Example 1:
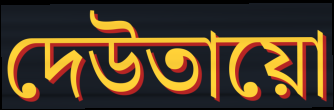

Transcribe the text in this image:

দেউতায়ো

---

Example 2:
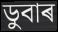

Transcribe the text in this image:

ডুবাৰ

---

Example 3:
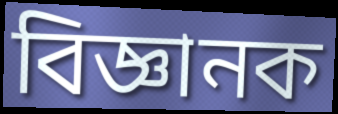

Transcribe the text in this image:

বিজ্ঞানক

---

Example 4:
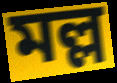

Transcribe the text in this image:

মল্ল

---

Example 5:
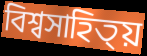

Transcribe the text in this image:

বিশ্বসাহিত্য়